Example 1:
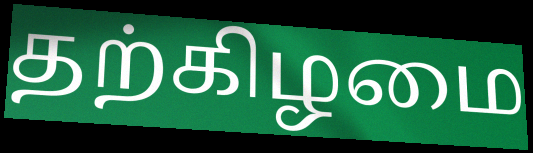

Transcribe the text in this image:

தற்கிழமை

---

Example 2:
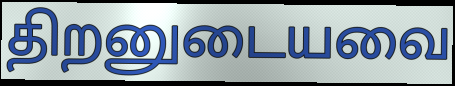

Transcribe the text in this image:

திறனுடையவை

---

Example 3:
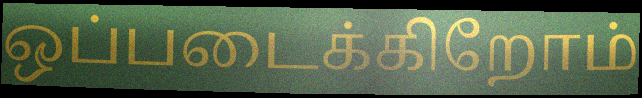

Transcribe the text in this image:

ஒப்படைக்கிறோம்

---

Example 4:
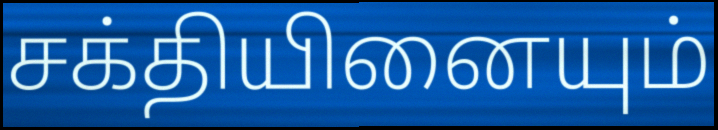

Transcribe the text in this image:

சக்தியினையும்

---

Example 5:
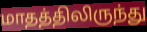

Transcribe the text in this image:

மாதத்திலிருந்து